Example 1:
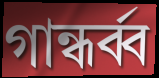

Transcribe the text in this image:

গান্ধর্ব্ব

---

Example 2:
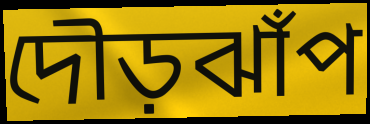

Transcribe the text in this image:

দৌড়ঝাঁপ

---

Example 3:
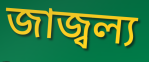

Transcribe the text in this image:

জাজ্বল্য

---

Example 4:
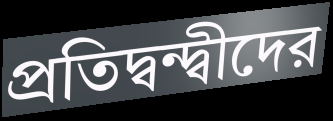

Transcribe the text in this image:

প্রতিদ্বন্দ্বীদের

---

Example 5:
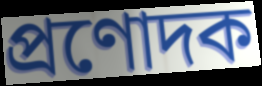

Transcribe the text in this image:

প্রণোদক